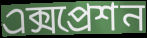
এক্সপ্রেশন